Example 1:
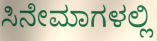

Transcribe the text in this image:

ಸಿನೇಮಾಗಳಲ್ಲಿ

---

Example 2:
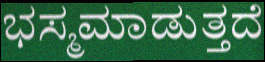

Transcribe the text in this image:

ಭಸ್ಮಮಾಡುತ್ತದೆ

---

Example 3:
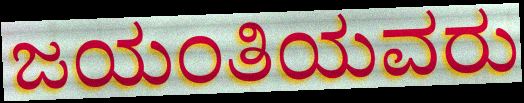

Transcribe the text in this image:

ಜಯಂತಿಯವರು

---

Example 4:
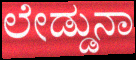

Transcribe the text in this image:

ಲೇಡ್ಡುನಾ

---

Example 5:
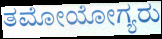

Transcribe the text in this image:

ತಮೋಯೋಗ್ಯರು